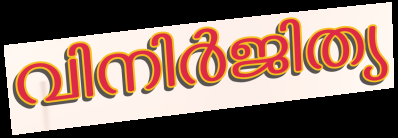
വിനിർജിത്യ